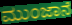
ಮುಂಜಾನೆ